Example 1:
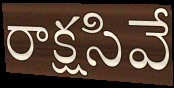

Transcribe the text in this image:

రాక్షసివే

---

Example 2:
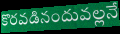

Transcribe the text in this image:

కొరవడినందువల్లనే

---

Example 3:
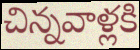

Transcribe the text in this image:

చిన్నవాళ్లకి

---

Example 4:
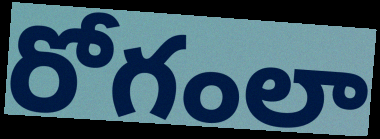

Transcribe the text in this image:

రోగంలా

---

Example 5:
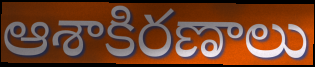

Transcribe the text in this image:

ఆశాకిరణాలు